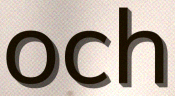
och